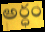
అర్ధం